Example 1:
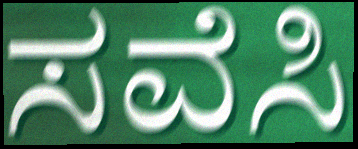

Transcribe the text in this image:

ಸವೆಸಿ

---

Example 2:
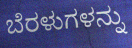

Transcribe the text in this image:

ಬೆರಳುಗಳನ್ನು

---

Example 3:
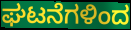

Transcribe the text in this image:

ಘಟನೆಗಳಿಂದ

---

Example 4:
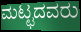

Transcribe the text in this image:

ಮಟ್ಟದವರು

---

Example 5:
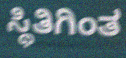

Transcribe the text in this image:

ಸ್ಥಿತಿಗಿಂತ